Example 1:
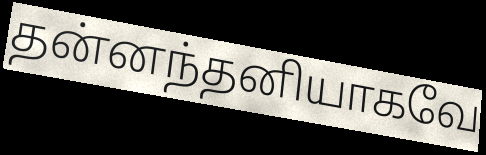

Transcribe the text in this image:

தன்னந்தனியாகவே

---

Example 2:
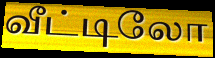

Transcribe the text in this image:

வீட்டிலோ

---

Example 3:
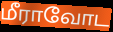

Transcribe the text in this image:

மீராவோட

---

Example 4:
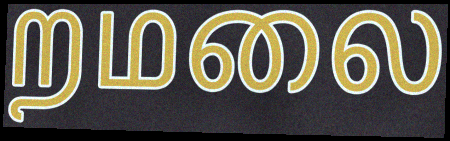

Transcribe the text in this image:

றமலை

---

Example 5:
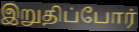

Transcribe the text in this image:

இறுதிப்போர்